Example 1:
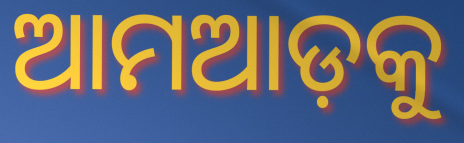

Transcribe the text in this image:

ଆମଆଡ଼କୁ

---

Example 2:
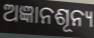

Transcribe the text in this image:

ଅଜ୍ଞାନଶୂନ୍ୟ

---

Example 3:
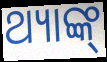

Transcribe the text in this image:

ଥ୍ୟାଙ୍କ୍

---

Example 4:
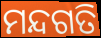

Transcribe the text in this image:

ମନ୍ଦଗତି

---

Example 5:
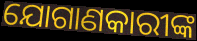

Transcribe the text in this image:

ଯୋଗାଣକାରୀଙ୍କ